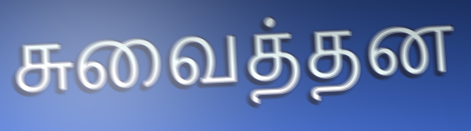
சுவைத்தன